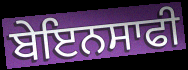
ਬੇਇਨਸਾਫੀ